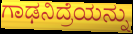
ಗಾಢನಿದ್ರೆಯನ್ನು